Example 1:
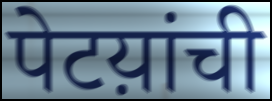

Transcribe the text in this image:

पेटय़ांची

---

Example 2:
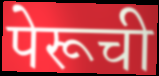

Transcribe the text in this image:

पेरूची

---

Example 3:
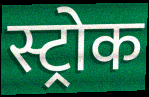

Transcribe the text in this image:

स्ट्रोक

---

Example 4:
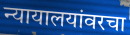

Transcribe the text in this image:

न्यायालयांवरचा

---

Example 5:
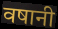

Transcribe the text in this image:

वषानी